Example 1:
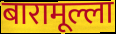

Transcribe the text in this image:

बारामूल्ला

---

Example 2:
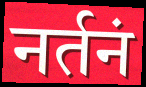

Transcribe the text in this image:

नर्तनं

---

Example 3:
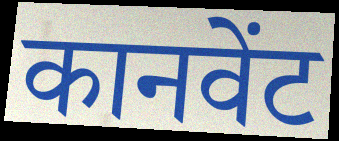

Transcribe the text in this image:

कानवेंट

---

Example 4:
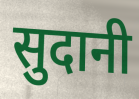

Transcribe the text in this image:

सुदानी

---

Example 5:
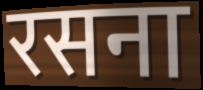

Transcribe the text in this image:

रसना